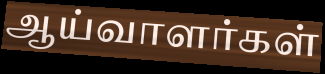
ஆய்வாளர்கள்